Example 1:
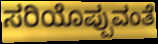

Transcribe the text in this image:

ಸರಿಯೊಪ್ಪುವಂತೆ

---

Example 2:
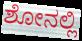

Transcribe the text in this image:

ಶೋನಲ್ಲಿ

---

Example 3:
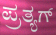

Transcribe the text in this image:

ಪ್ರತ್ಯಗ್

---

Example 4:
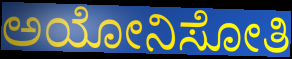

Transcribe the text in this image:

ಅಯೋನಿಸೋತಿ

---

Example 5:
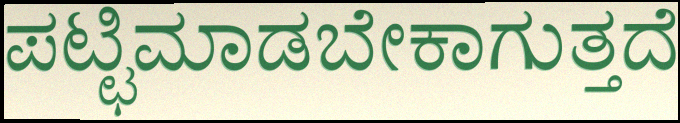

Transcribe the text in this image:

ಪಟ್ಟಿಮಾಡಬೇಕಾಗುತ್ತದೆ